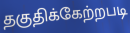
தகுதிக்கேற்றபடி